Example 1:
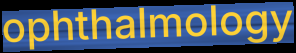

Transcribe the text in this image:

ophthalmology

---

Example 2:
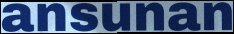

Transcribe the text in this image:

ansunan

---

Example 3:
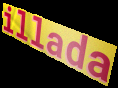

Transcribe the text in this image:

illada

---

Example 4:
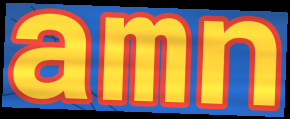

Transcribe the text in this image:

amn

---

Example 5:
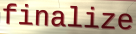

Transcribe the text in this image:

finalize